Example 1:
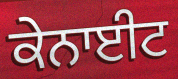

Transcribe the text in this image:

ਕੇਨਾਈਟ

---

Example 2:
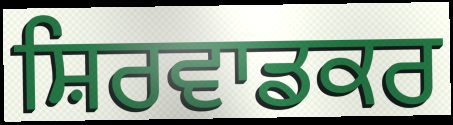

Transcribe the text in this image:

ਸ਼ਿਰਵਾਡਕਰ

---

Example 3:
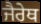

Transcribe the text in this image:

ਜੈਰੇਥ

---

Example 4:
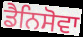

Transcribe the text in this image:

ਡੈਨਿਸੋਵਾ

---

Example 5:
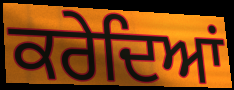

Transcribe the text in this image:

ਕਰੇਦਿਆਂ